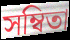
সম্বিতা